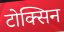
टोक्सिन